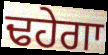
ਢਹੇਗਾ